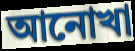
আনোখা